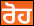
ਰੋਹ